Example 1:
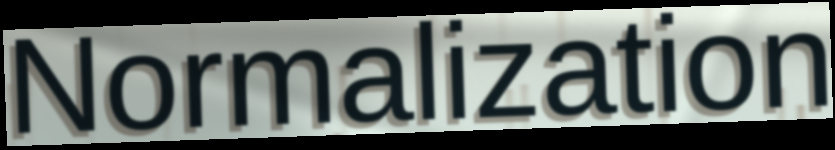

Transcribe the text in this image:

Normalization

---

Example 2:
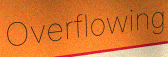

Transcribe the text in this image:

Overflowing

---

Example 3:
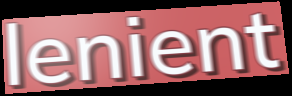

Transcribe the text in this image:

lenient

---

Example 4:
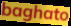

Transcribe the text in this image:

baghato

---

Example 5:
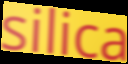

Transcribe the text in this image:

silica